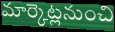
మార్కెట్లనుంచి